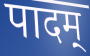
पादम्